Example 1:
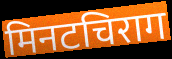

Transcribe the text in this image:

मिनटचिराग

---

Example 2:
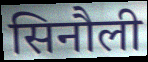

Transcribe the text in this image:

सिनौली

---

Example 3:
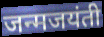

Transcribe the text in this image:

जन्मजयंती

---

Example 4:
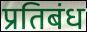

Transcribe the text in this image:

प्रतिबंध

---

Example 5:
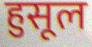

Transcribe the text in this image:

हुसूल